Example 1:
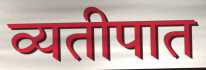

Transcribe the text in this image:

व्यतीपात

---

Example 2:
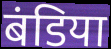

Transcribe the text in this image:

बंडिया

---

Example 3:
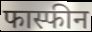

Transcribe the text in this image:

फास्फीन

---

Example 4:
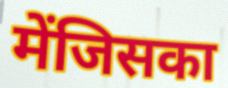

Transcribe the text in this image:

मेंजिसका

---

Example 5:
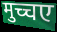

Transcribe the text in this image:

मुच्चए